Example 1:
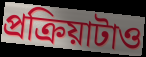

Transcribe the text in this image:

প্রক্রিয়াটাও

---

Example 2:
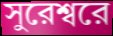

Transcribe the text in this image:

সুরেশ্বরে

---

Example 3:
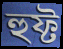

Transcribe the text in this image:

হুফ্ট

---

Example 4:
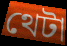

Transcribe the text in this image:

থেটা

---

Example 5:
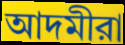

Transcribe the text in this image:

আদমীরা